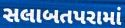
સલાબતપરામાં